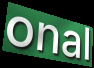
onal